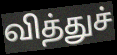
வித்துச்